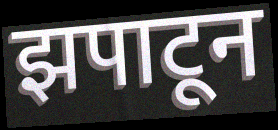
झपाटून